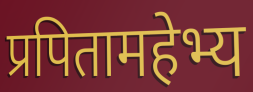
प्रपितामहेभ्य